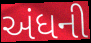
અંધની